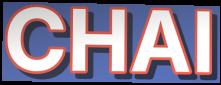
CHAI